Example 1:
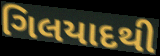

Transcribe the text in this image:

ગિલયાદથી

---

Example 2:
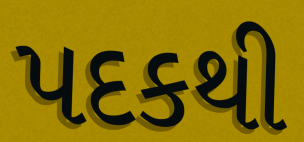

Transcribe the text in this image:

પદકથી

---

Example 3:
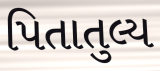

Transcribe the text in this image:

પિતાતુલ્ય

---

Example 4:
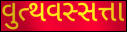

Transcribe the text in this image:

વુત્થવસ્સત્તા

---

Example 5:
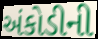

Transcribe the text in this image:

અંકોડીની